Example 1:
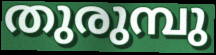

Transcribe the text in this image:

തുരുമ്പു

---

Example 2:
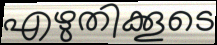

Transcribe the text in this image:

എഴുതിക്കൂടെ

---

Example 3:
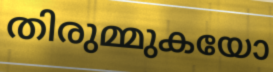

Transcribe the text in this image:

തിരുമ്മുകയോ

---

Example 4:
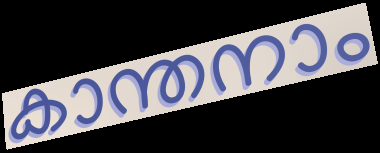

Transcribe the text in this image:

കാന്തനാം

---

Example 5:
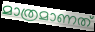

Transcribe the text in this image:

മാത്രമാണത്